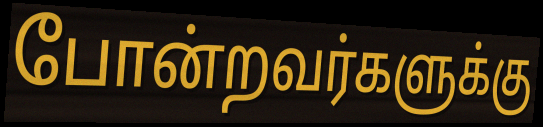
போன்றவர்களுக்கு